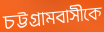
চট্টগ্রামবাসীকে